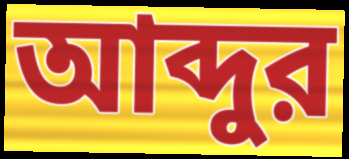
আব্দুর